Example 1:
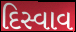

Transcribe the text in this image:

દિસ્વાવ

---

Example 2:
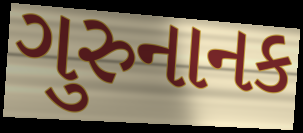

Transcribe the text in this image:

ગુરુનાનક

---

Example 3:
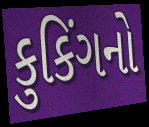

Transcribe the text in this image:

કુકિંગનો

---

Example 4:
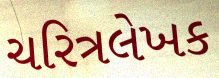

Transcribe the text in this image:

ચરિત્રલેખક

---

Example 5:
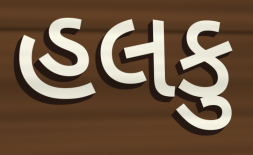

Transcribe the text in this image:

હલકુ